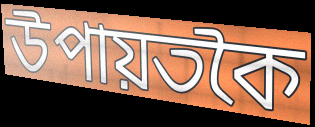
উপায়তকৈ